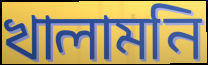
খালামনি